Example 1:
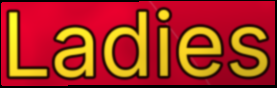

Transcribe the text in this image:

Ladies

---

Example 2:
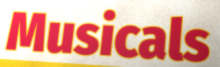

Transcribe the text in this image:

Musicals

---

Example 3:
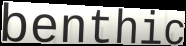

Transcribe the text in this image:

benthic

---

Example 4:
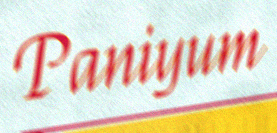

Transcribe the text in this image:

Paniyum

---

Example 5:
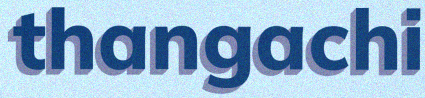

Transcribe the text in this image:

thangachi